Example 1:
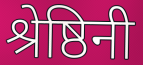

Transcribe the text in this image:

श्रेष्ठिनी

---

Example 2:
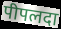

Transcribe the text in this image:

पीपलदा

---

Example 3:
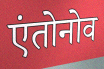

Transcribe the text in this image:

एंतोनोव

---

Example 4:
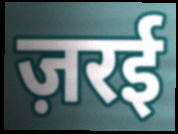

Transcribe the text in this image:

ज़रई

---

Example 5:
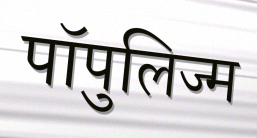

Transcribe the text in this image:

पॉपुलिज्म